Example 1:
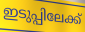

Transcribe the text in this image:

ഇടുപ്പിലേക്ക്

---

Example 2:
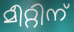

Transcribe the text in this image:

മീറ്റിന്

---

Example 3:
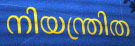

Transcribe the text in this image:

നിയന്ത്രിത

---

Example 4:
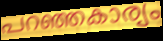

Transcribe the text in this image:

പറഞ്ഞകാര്യം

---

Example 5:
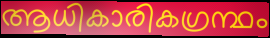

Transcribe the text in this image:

ആധികാരികഗ്രന്ഥം